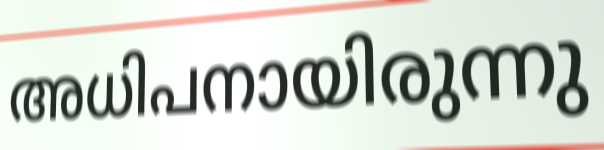
അധിപനായിരുന്നു